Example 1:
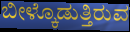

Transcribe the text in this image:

ಬೀಳ್ಕೊಡುತ್ತಿರುವ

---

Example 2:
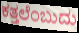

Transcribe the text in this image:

ಕತ್ತಲೆಂಬುದು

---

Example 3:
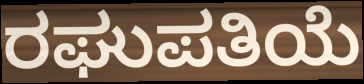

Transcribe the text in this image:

ರಘುಪತಿಯೆ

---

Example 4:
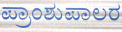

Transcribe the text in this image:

ಪ್ರಾಂಶುಪಾಲರ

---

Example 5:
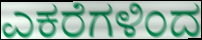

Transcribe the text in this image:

ಎಕರೆಗಳಿಂದ